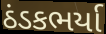
ઠંડકભર્યા